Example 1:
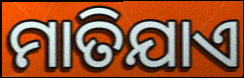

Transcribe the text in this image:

ମାତିଯାଏ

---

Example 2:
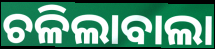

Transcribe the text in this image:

ଚଳିଲାବାଲା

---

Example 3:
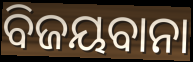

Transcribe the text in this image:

ବିଜୟବାନା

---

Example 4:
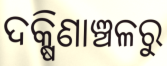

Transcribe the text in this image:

ଦକ୍ଷିଣାଞ୍ଚଳରୁ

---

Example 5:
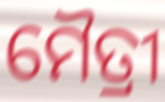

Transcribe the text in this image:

ମୈତ୍ରୀ